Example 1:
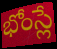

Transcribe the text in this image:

భోంస్లే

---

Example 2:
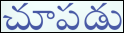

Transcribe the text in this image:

చూపడు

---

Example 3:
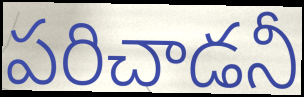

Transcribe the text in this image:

పరిచాడనీ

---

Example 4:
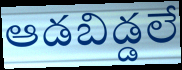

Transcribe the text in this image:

ఆడబిడ్డలే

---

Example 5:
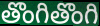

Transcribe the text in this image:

తొంగితొంగి